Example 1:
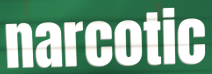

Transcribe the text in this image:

narcotic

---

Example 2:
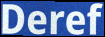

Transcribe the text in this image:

Deref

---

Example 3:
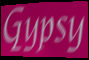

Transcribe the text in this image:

Gypsy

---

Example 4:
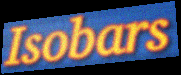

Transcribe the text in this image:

Isobars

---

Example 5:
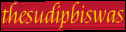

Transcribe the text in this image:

thesudipbiswas